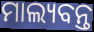
ମାଲ୍ୟବନ୍ତ